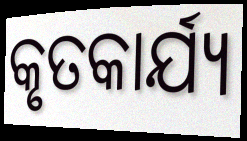
କୃତକାର୍ଯ୍ୟ